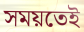
সময়তেই